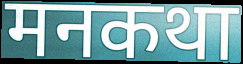
मनकथा